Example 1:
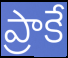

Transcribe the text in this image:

ప్రాకే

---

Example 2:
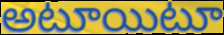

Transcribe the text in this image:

అటూయిటూ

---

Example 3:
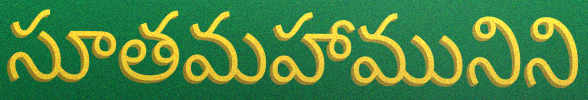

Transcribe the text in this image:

సూతమహామునిని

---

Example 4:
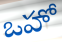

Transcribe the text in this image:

ఒహో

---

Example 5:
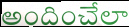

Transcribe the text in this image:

అందించేలా